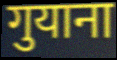
गुयाना